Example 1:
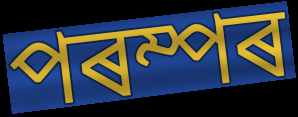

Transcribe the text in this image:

পৰম্পৰ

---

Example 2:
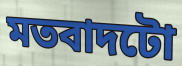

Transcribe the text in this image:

মতবাদটো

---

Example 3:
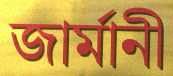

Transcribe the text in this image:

জাৰ্মানী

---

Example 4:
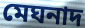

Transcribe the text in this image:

মেঘনাদ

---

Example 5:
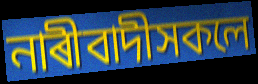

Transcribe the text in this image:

নাৰীবাদীসকলে